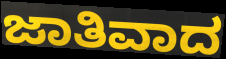
ಜಾತಿವಾದ